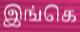
இங்கெ